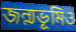
জন্মভূমিও